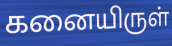
கனையிருள்